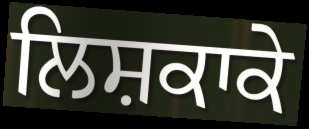
ਲਿਸ਼ਕਾਕੇ